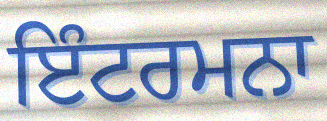
ਇੰਟਰਮਨਾ